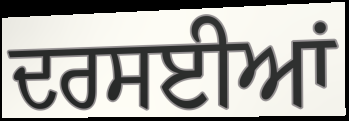
ਦਰਸਈਆਂ